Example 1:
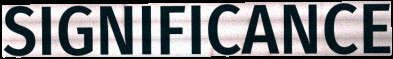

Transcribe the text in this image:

SIGNIFICANCE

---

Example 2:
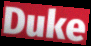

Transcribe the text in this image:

Duke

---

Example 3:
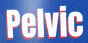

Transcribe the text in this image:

Pelvic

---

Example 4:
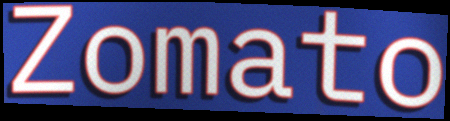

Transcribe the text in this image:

Zomato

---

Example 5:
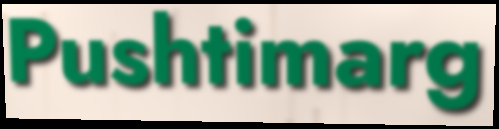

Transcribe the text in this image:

Pushtimarg